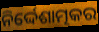
ନିର୍ଦ୍ଦେଶାତ୍ମକର